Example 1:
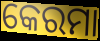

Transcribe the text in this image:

କେରମା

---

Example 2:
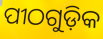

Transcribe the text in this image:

ପୀଠଗୁଡ଼ିକ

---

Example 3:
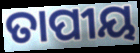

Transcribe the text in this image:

ତାପୀୟ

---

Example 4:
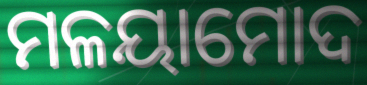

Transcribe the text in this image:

ମଳୟାମୋଦ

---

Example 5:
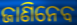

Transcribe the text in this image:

ଜାଣିନେବ